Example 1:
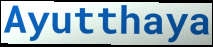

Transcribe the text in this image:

Ayutthaya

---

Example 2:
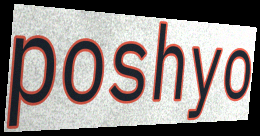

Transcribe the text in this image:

poshyo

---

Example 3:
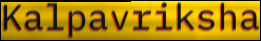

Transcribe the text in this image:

Kalpavriksha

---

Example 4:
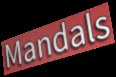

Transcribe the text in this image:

Mandals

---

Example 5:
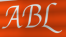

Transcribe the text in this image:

ABL